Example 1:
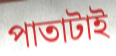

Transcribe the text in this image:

পাতাটাই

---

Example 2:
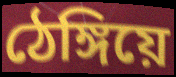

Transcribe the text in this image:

ঠেঙ্গিয়ে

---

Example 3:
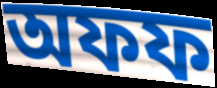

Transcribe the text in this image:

অফফ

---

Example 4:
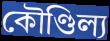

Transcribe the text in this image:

কৌণ্ডিল্য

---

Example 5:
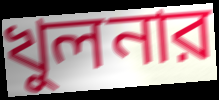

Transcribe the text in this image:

খুলনার